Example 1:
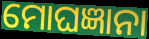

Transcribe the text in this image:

ମୋଘଜ୍ଞାନା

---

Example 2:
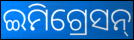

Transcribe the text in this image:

ଇମିଗ୍ରେସନ୍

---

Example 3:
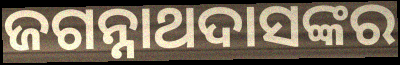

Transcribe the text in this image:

ଜଗନ୍ନାଥଦାସଙ୍କର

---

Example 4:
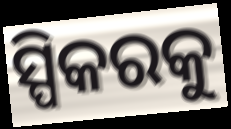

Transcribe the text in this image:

ସ୍ପିକରକୁ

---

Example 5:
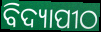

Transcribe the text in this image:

ବିଦ୍ୟାପୀଠ